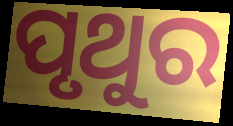
ପୃଥୁର